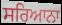
ਸਰਿਆਨਾ